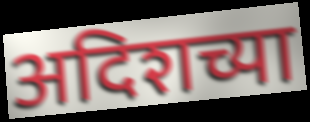
अदिशच्या